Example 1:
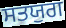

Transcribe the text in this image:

ਸਤਯੁਗ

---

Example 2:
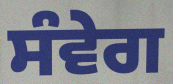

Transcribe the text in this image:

ਸੰਵੇਗ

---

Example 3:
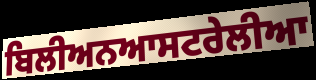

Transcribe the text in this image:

ਬਿਲੀਅਨਆਸਟਰੇਲੀਆ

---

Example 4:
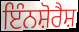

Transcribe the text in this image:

ਇੰਨਸ਼ੋਰੈਸ਼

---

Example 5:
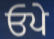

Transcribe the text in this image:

ਓਪੇ